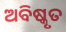
ଅବିଷ୍କୃତ